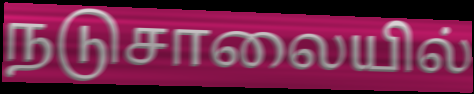
நடுசாலையில்